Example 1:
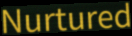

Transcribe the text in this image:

Nurtured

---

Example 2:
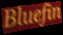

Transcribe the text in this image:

Bluefin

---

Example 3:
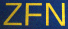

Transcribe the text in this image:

ZFN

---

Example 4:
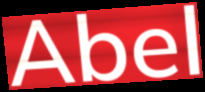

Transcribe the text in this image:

Abel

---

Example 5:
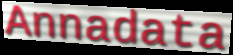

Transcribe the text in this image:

Annadata